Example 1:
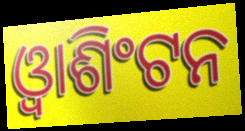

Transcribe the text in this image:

ଓ୍ୱାଶିଂଟନ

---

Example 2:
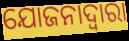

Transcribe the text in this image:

ଯୋଜନାଦ୍ୱାରା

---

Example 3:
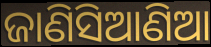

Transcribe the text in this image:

ଜାଣିସିଆଣିଆ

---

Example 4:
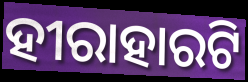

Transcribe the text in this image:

ହୀରାହାରଟି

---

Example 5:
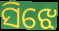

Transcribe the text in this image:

ସିଝେ